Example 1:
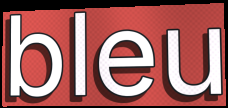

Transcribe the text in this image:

bleu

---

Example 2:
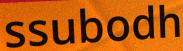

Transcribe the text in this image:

ssubodh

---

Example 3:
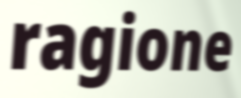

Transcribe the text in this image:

ragione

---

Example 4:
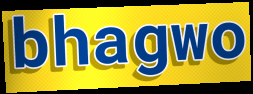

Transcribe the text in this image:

bhagwo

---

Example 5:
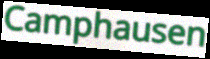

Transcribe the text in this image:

Camphausen